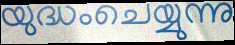
യുദ്ധംചെയ്യുന്നു